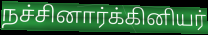
நச்சினார்க்கினியர்